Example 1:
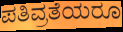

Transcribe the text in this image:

ಪತಿವ್ರತೆಯರೂ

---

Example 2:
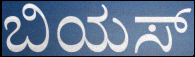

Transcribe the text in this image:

ಬಿಯಸ್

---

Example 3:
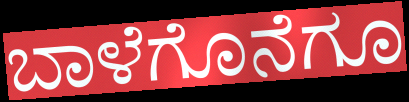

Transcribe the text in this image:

ಬಾಳೆಗೊನೆಗೂ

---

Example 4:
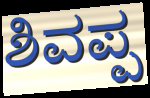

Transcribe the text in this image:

ಶಿವಪ್ಪ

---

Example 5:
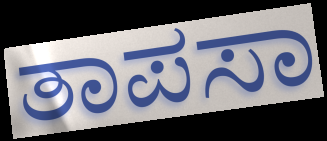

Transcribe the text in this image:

ತಾಪಸಾ